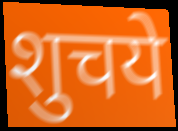
शुचये